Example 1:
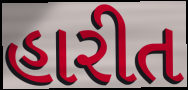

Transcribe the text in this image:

હારીત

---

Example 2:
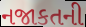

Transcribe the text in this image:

નજાકતની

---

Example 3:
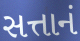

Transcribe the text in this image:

સત્તાનં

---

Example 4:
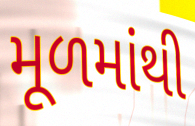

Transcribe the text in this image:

મૂળમાંથી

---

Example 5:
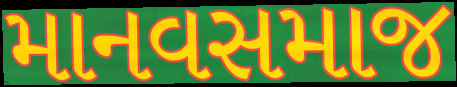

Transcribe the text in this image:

માનવસમાજ